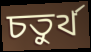
চতুর্থ